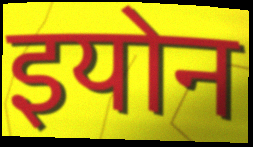
इयोन